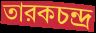
তারকচন্দ্র